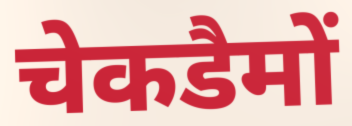
चेकडैमों